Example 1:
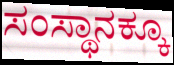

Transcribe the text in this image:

ಸಂಸ್ಥಾನಕ್ಕೂ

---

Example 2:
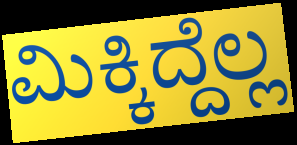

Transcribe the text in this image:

ಮಿಕ್ಕಿದ್ದೆಲ್ಲ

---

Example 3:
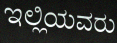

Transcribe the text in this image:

ಇಲ್ಲಿಯವರು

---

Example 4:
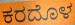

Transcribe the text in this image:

ಕರದೊಳ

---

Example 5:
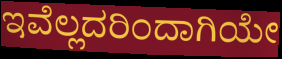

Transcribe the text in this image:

ಇವೆಲ್ಲದರಿಂದಾಗಿಯೇ